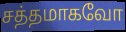
சத்தமாகவோ